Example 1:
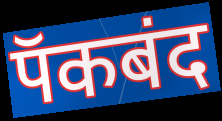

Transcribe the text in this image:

पॅकबंद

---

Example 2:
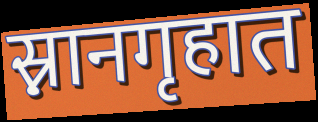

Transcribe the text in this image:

स्नानगृहात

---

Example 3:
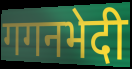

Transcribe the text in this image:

गगनभेदी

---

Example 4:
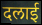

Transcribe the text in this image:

दलाई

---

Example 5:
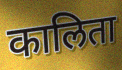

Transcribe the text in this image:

कालिता